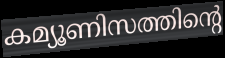
കമ്യൂണിസത്തിന്റെ